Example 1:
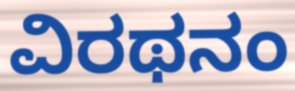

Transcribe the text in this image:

ವಿರಥನಂ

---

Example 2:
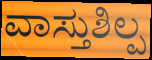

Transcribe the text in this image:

ವಾಸ್ತುಶಿಲ್ಪ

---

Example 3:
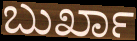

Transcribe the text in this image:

ಬುರ್ಖಾ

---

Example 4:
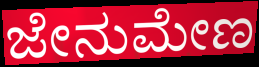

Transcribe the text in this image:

ಜೇನುಮೇಣ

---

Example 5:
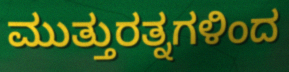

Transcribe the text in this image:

ಮುತ್ತುರತ್ನಗಳಿಂದ